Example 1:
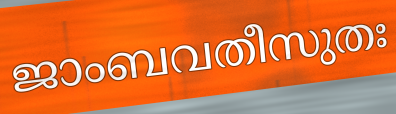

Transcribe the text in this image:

ജാംബവതീസുതഃ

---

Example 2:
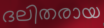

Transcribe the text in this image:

ദലിതരായ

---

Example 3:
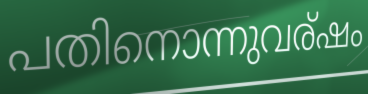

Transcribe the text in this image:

പതിനൊന്നുവര്ഷം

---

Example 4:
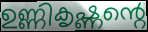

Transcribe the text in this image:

ഉണ്ണികൃഷ്ണന്റെ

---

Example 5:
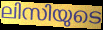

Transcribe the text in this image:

ലിസിയുടെ